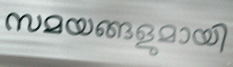
സമയങ്ങളുമായി